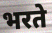
भरते